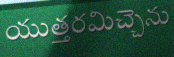
యుత్తరమిచ్చెను